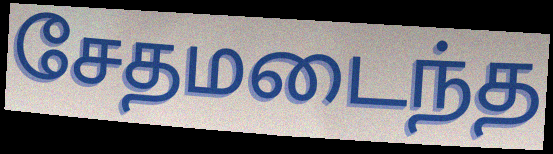
சேதமடைந்த